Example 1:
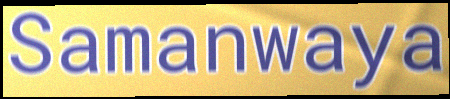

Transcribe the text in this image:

Samanwaya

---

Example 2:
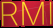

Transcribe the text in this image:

RMI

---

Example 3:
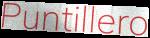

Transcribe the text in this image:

Puntillero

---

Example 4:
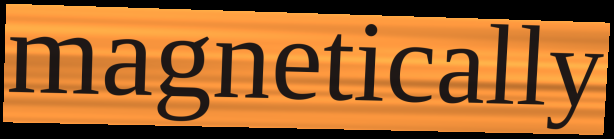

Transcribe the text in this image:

magnetically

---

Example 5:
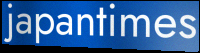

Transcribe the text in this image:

japantimes